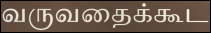
வருவதைக்கூட